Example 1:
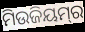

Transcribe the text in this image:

ମିଉଜିୟମ୍‌ର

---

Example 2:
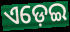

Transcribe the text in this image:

ଏଡ଼େଇ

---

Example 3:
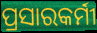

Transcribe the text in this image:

ପ୍ରସାରକର୍ମୀ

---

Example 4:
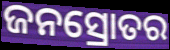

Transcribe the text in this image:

ଜନସ୍ରୋତର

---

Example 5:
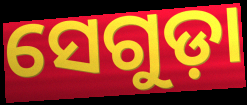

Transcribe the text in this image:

ସେଗୁଡ଼ା